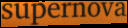
supernova